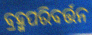
ବ୍ରହ୍ମପରିବର୍ତ୍ତନ